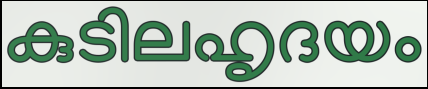
കുടിലഹൃദയം